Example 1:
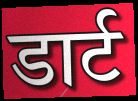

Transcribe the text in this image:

डार्ट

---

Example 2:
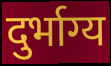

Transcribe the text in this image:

दुर्भाग्य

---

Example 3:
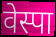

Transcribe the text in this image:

वेस्पा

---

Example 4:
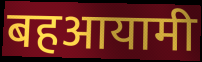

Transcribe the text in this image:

बहआयामी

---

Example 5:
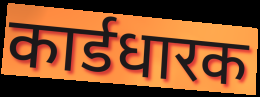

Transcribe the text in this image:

कार्डधारक